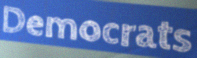
Democrats